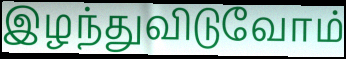
இழந்துவிடுவோம்